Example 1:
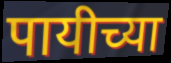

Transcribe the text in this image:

पायीच्या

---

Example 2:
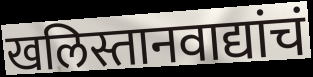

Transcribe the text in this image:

खलिस्तानवाद्यांचं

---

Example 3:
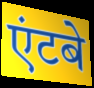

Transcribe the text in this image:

एंटबे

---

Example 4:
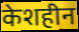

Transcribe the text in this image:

केशहीन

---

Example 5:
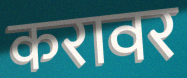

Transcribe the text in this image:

करावर